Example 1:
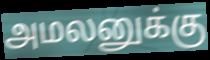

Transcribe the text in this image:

அமலனுக்கு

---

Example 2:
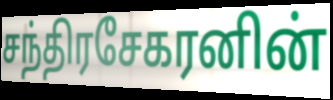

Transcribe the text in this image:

சந்திரசேகரனின்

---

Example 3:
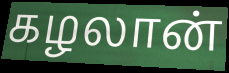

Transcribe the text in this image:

கழலான்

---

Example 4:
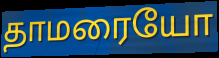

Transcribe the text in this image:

தாமரையோ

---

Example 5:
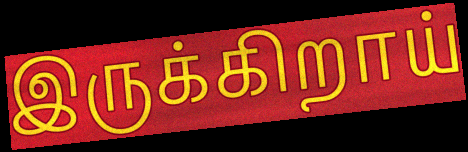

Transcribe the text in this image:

இருக்கிறாய்